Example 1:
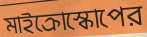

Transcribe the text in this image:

মাইক্রোস্কোপের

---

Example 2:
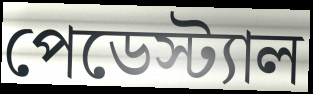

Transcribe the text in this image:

পেডেস্ট্যাল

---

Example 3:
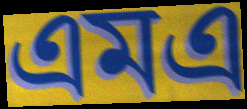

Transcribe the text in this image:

এমএ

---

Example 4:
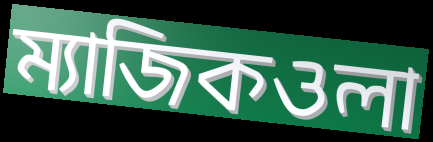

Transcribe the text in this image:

ম্যাজিকওলা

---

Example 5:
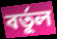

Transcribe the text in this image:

বর্তুল